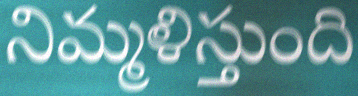
నిమ్మళిస్తుంది